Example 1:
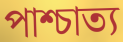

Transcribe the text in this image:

পাশ্চাত্য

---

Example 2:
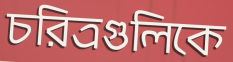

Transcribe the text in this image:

চরিত্রগুলিকে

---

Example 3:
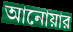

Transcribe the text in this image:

আনোয়ার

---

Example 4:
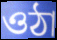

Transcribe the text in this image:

ওঠা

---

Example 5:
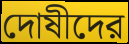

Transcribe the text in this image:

দোষীদের